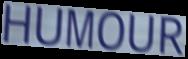
HUMOUR